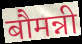
बौमन्नी